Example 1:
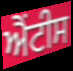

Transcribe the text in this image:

ਐਂਟੀਸ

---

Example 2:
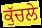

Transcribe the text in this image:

ਕੁੱਚਲੇ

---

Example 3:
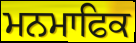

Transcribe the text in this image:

ਮਨਮਾਫਿਕ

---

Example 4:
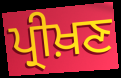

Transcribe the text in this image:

ਪ੍ਰੀਖ਼ਣ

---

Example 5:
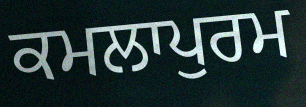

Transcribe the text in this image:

ਕਮਲਾਪੁਰਮ